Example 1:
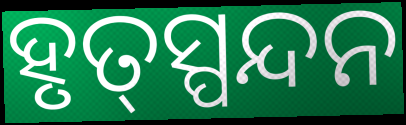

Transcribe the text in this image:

ହୃତ୍‌ସ୍ପନ୍ଦନ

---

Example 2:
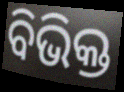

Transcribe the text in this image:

ବିଭିକ୍ତ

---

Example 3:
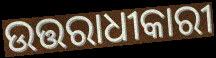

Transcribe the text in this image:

ଉତ୍ତରାଧୀକାରୀ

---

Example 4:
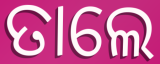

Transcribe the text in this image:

ତାଲେ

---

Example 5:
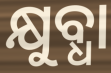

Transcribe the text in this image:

କ୍ଷୁବ୍ଧା